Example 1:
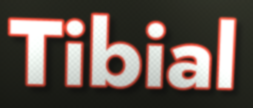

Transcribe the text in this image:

Tibial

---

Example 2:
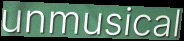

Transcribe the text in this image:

unmusical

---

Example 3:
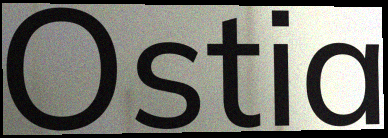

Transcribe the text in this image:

Ostia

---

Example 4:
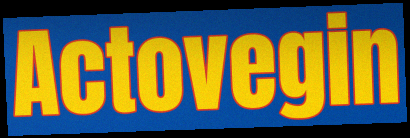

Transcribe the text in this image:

Actovegin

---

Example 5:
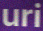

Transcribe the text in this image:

uri